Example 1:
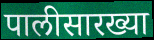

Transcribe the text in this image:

पालीसारख्या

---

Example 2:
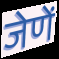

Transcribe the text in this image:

जेणें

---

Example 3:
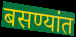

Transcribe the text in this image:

बसण्यांत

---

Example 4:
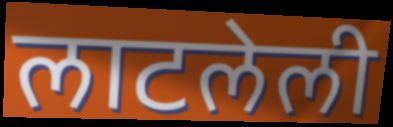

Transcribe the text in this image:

लाटलेली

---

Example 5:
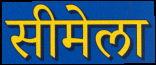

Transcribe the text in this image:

सीमेला